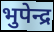
भुपेन्द्र